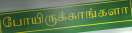
போயிருக்காங்களா